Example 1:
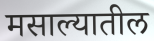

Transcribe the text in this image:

मसाल्यातील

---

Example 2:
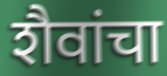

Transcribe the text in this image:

शैवांचा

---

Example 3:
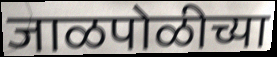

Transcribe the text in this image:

जाळपोळीच्या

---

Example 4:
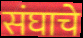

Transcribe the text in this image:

संघाचे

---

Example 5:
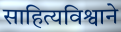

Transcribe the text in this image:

साहित्यविश्वाने